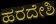
ಹರದೇಶಿ